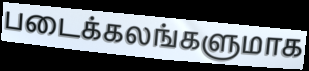
படைக்கலங்களுமாக